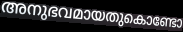
അനുഭവമായതുകൊണ്ടോ